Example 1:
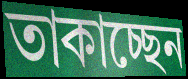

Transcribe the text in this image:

তাকাচ্ছেন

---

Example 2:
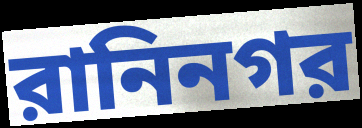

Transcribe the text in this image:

রানিনগর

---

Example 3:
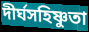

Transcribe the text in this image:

দীর্ঘসহিষ্ণুতা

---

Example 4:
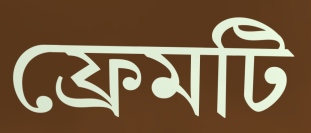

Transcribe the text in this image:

ফ্রেমটি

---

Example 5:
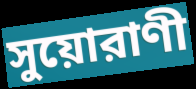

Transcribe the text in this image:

সুয়োরাণী